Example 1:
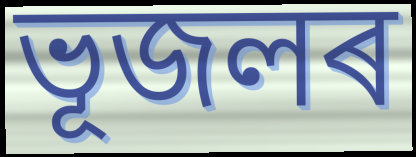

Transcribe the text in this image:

ভূজলৰ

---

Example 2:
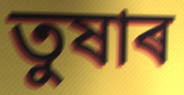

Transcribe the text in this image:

তুষাৰ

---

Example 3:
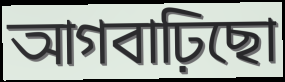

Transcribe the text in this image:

আগবাঢ়িছো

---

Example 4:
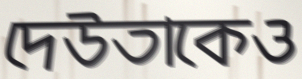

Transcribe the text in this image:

দেউতাকেও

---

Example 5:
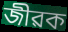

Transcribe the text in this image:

জীৱক